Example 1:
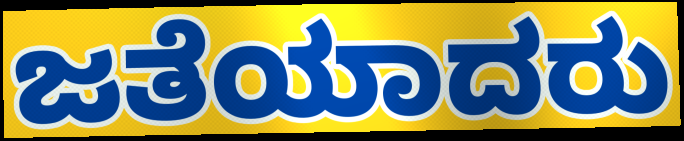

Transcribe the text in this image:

ಜತೆಯಾದರು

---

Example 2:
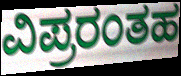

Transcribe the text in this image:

ವಿಪ್ರರಂತಹ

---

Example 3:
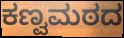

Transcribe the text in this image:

ಕಣ್ವಮಠದ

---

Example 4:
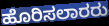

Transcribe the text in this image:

ಹೊರಿಸಲಾರರು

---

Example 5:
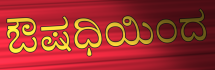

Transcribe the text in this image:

ಔಷಧಿಯಿಂದ